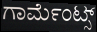
ಗಾರ್ಮೆಂಟ್ಸ್